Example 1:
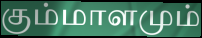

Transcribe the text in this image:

கும்மாளமும்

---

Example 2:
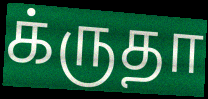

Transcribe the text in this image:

க்ருதா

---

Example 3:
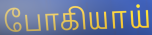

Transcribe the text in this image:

போகியாய்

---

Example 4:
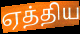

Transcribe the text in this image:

ஏத்திய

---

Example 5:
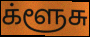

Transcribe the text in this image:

க்ளூசு